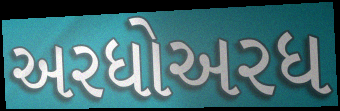
અરધોઅરધ